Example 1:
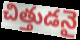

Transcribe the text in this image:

చిత్తుడనై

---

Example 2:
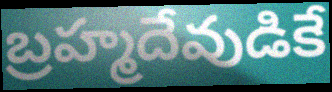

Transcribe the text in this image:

బ్రహ్మదేవుడికే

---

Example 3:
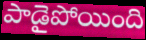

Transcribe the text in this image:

పాడైపోయింది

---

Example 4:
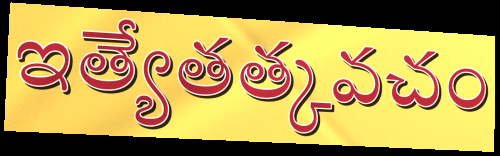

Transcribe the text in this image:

ఇత్యేతత్కవచం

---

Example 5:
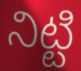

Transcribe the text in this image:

నిట్టి